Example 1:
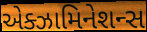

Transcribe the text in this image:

એક્ઝામિનેશન્સ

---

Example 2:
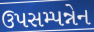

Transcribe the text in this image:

ઉપસમ્પન્નેન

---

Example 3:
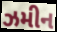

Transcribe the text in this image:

ઝમીન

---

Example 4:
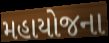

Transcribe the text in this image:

મહાયોજના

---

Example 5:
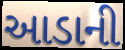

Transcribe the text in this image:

આડાની